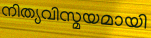
നിത്യവിസ്മയമായി